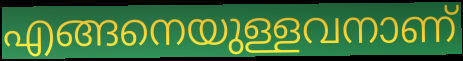
എങ്ങനെയുള്ളവനാണ്